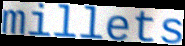
millets